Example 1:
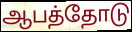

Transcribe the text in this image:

ஆபத்தோடு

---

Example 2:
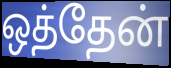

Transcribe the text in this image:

ஒத்தேன்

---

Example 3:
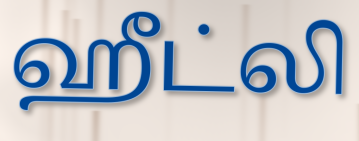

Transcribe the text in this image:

ஹீட்லி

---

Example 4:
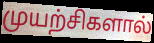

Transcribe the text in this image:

முயற்சிகளால்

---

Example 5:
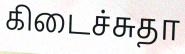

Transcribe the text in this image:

கிடைச்சுதா